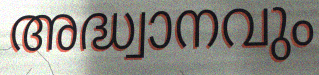
അദ്ധ്വാനവും